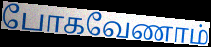
போகவேணாம்